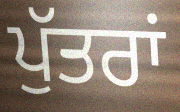
ਪੁੱਤਰਾਂ